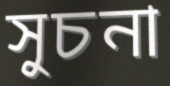
সুচনা